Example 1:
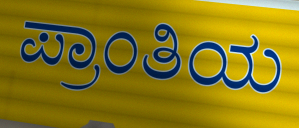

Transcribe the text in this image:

ಪ್ರಾಂತಿಯ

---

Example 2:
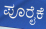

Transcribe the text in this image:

ಪೂರೈಕೆ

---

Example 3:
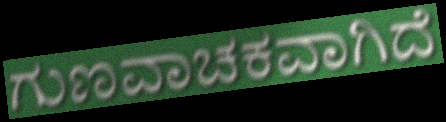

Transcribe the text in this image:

ಗುಣವಾಚಕವಾಗಿದೆ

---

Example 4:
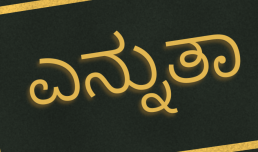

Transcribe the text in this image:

ಎನ್ನುತಾ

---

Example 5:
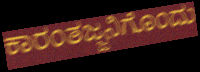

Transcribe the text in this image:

ಕಾರಂತಜ್ಜನಿಗೊಂದು